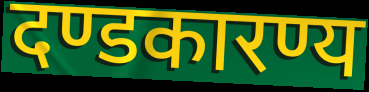
दण्डकारण्य